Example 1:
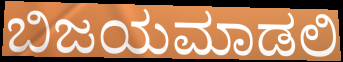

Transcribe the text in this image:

ಬಿಜಯಮಾಡಲಿ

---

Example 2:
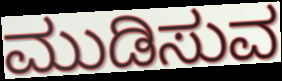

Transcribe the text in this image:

ಮುಡಿಸುವ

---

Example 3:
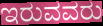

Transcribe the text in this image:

ಇರುವವರು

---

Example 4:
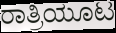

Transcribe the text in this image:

ರಾತ್ರಿಯೂಟ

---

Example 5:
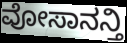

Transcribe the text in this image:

ವೋಸಾನನ್ತಿ